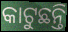
କାଟୁଛନ୍ତି